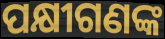
ପକ୍ଷୀଗଣଙ୍କ